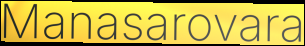
Manasarovara